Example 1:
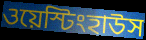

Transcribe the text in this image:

ওয়েস্টিংহাউস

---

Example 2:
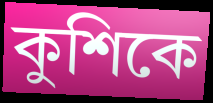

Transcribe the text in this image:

কুশিকে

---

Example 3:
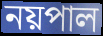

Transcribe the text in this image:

নয়পাল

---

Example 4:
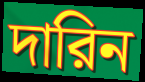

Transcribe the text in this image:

দারিন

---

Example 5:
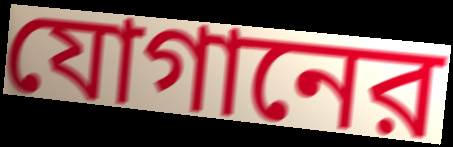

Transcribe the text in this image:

যোগানের